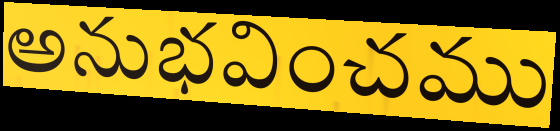
అనుభవించము